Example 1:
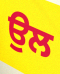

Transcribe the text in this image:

ਉਲ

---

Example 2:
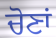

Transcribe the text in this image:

ਚੋਣਾਂ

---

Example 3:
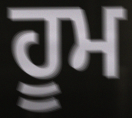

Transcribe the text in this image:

ਹੂਮ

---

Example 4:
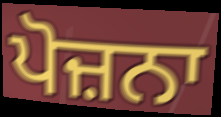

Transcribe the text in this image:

ਪੋਜ਼ਨਾ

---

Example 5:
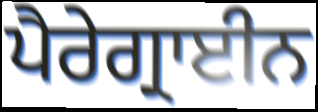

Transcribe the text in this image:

ਪੈਰੇਗ੍ਰਾਈਨ